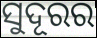
ସୁଦୂରର